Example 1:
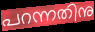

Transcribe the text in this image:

പറന്നതിനു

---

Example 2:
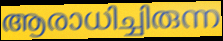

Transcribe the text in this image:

ആരാധിച്ചിരുന്ന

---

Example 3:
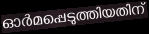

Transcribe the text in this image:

ഓർമപ്പെടുത്തിയതിന്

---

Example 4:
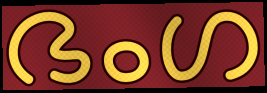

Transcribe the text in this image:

ഭംഗ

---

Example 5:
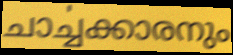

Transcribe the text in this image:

ചാൎച്ചക്കാരനും